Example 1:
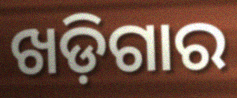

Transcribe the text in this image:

ଖଡ଼ିଗାର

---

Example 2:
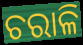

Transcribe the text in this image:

ଚରାଳି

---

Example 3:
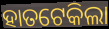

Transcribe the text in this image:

ହାତଟେକିଲା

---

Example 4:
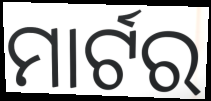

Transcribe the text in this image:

ମାର୍ଟର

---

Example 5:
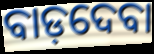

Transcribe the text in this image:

ବାଡ଼ଦେବା